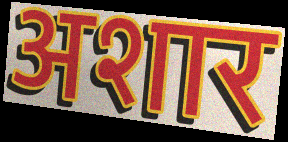
अशार